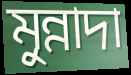
মুন্নাদা